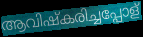
ആവിഷ്കരിച്ചപ്പോള്